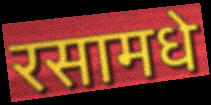
रसामधे